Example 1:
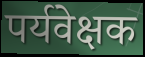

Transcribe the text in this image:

पर्यवेक्षक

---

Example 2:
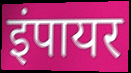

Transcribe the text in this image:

इंपायर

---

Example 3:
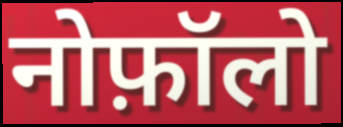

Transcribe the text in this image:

नोफ़ॉलो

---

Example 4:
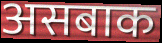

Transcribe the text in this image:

असबाक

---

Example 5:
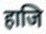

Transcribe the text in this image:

हाजि